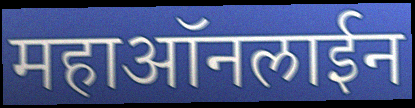
महाऑनलाईन